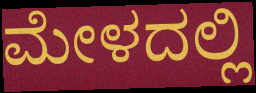
ಮೇಳದಲ್ಲಿ